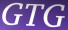
GTG